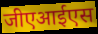
जीएआईएस